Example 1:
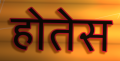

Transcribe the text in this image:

होतेस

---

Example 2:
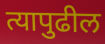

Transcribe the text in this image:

त्यापुढील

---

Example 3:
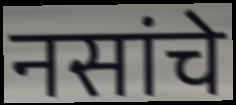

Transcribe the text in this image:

नसांचे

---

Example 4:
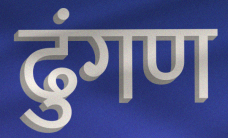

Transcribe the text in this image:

ढुंगण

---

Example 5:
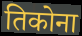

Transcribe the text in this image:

तिकोना